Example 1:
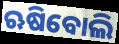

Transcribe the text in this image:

ଋଷିବୋଲି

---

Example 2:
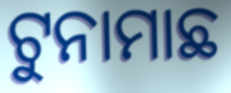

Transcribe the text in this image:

ଟୁନାମାଛ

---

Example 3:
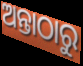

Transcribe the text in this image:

ଅନ୍ତାଠାରୁ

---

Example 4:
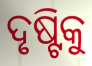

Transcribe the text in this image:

ଦୃଷ୍ଟିକୁ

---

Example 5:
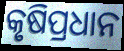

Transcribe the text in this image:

କୃଷିପ୍ରଧାନ